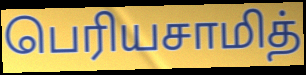
பெரியசாமித்